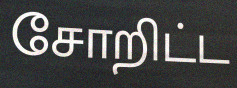
சோறிட்ட